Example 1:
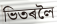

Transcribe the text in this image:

ভিতৰলৈ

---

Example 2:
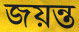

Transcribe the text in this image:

জয়ন্ত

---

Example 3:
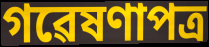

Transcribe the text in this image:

গৱেষণাপত্ৰ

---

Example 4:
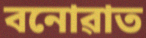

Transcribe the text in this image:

বনোৱাত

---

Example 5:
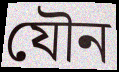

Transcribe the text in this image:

যৌন